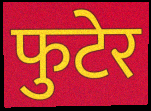
फुटेर